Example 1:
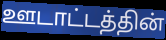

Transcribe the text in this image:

ஊடாட்டத்தின்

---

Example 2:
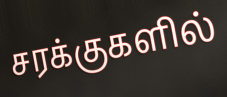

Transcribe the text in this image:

சரக்குகளில்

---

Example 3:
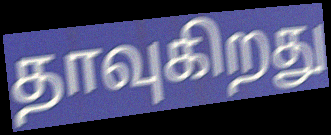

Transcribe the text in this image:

தாவுகிறது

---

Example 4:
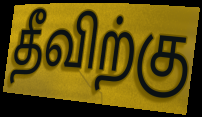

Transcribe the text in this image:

தீவிற்கு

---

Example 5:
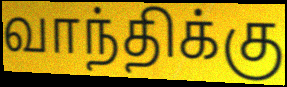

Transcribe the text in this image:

வாந்திக்கு